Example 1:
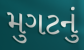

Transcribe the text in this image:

મુગટનું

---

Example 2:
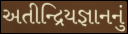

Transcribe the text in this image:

અતીન્દ્રિયજ્ઞાનનું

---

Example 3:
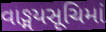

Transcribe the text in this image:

વાઙ્મયસૂચિમાં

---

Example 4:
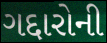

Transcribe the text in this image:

ગદ્દારોની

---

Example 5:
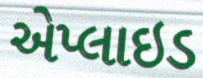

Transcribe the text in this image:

એપ્લાઇડ